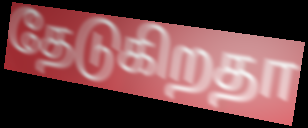
தேடுகிறதா